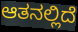
ಆತನಲ್ಲಿದೆ